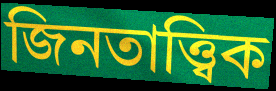
জিনতাত্ত্বিক